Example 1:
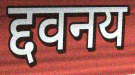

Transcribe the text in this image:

द्दवनय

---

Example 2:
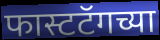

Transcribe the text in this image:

फास्टटॅगच्या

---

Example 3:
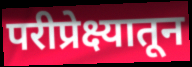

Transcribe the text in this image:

परीप्रेक्ष्यातून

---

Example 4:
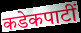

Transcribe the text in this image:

कडेकपाटीं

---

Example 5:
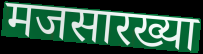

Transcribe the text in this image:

मजसारख्या